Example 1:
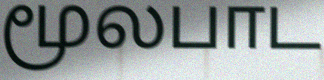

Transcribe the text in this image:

மூலபாட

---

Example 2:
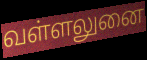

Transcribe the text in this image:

வள்ளலுனை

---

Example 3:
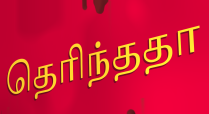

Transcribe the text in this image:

தெரிந்ததா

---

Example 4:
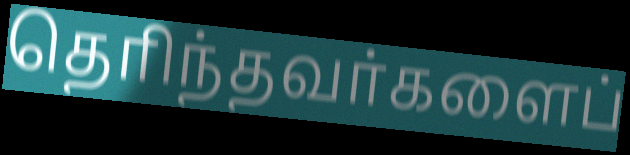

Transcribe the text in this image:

தெரிந்தவர்களைப்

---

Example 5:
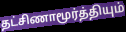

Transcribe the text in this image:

தட்சிணாமூர்த்தியும்